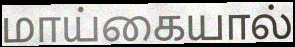
மாய்கையால்